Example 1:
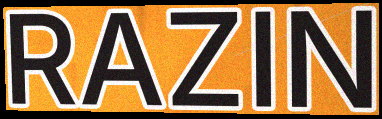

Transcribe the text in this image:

RAZIN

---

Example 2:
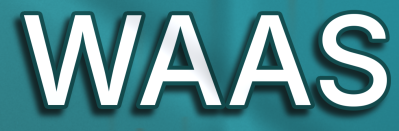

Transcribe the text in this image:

WAAS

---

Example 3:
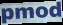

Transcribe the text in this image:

pmod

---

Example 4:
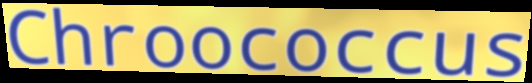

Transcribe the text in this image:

Chroococcus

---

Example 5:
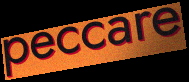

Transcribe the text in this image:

peccare